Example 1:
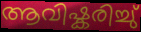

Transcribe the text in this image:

ആവിഷ്കരിച്ചു്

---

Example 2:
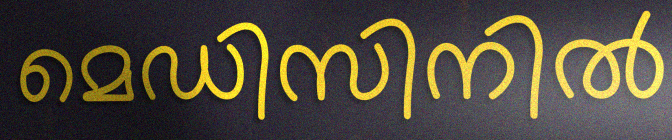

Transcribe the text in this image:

മെഡിസിനിൽ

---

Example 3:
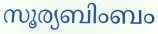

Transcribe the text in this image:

സൂര്യബിംബം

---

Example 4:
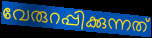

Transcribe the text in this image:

വേരുറപ്പിക്കുന്നത്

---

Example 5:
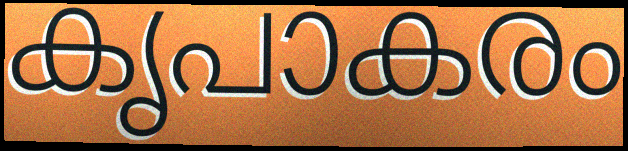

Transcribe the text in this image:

കൃപാകരം